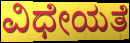
ವಿಧೇಯತೆ